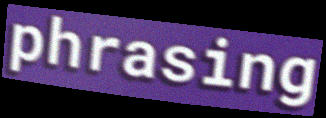
phrasing